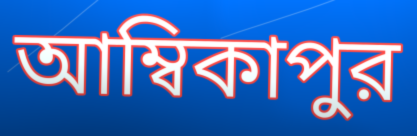
আম্বিকাপুর